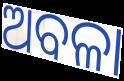
ଅବଳା